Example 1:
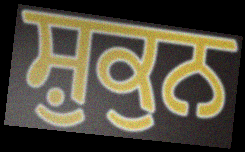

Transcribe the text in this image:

ਸ਼ੁਕੁਨ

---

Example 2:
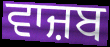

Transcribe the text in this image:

ਵਾਜ਼ਬ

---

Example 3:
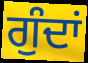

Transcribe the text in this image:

ਗੁੰਦਾਂ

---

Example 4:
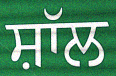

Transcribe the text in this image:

ਸ਼ਾੱਲ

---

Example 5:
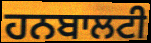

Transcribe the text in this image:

ਹਨਬਾਲਟੀ